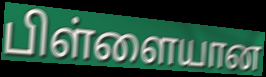
பிள்ளையான